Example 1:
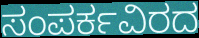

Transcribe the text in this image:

ಸಂಪರ್ಕವಿರದ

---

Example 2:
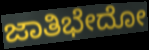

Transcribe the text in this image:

ಜಾತಿಭೇದೋ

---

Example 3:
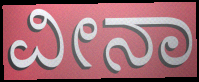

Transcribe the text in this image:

ವೀನಾ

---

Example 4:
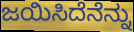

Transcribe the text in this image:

ಜಯಿಸಿದೆನೆನ್ನು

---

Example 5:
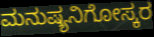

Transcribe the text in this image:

ಮನುಷ್ಯನಿಗೋಸ್ಕರ